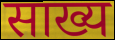
साख्य